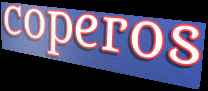
coperos